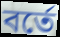
বর্তে